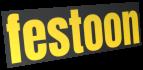
festoon